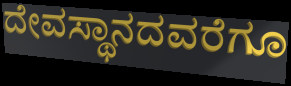
ದೇವಸ್ಥಾನದವರೆಗೂ